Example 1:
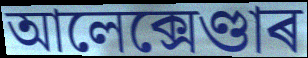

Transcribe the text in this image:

আলেক্সেণ্ডাৰ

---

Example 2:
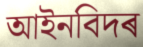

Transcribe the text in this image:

আইনবিদৰ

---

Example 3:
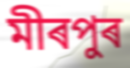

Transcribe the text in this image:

মীৰপুৰ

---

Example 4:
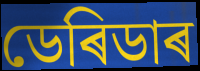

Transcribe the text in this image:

ডেৰিডাৰ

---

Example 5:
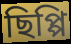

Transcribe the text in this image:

ছিপ্পি